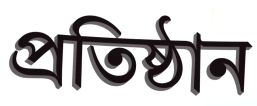
প্রতিষ্ঠান